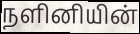
நளினியின்